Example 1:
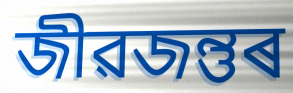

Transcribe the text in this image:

জীৱজন্তুৰ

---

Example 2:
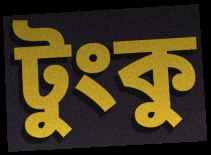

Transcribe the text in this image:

টুংকু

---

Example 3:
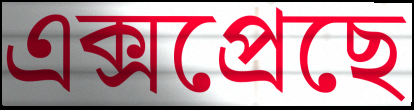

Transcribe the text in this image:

এক্সপ্ৰেছে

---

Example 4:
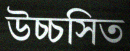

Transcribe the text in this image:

উচ্চসিত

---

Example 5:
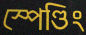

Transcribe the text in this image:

স্পেণ্ডিং